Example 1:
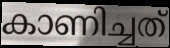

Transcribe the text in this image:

കാണിച്ചത്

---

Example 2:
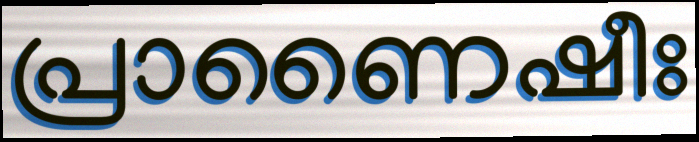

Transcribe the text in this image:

പ്രാണൈഷീഃ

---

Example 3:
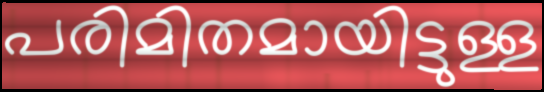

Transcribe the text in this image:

പരിമിതമായിട്ടുള്ള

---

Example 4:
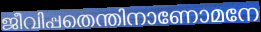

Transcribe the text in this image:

ജീവിപ്പതെന്തിനാണോമനേ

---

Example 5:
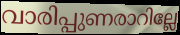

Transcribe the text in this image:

വാരിപ്പുണരാറില്ലേ